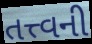
તત્ત્વની